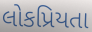
લોકપ્રિયતા